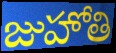
జుహోతి